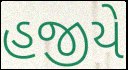
હજીયે